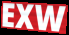
EXW